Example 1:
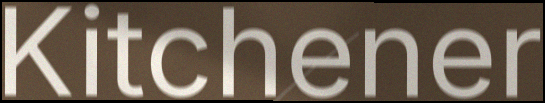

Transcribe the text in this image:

Kitchener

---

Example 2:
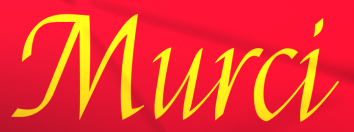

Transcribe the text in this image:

Murci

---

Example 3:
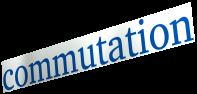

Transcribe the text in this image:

commutation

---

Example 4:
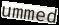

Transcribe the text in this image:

ummed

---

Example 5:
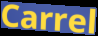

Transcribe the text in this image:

Carrel